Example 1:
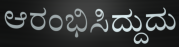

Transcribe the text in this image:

ಆರಂಭಿಸಿದ್ದುದು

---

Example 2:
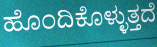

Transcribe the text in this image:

ಹೊಂದಿಕೊಳ್ಳುತ್ತದೆ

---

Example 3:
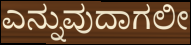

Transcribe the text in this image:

ಎನ್ನುವುದಾಗಲೀ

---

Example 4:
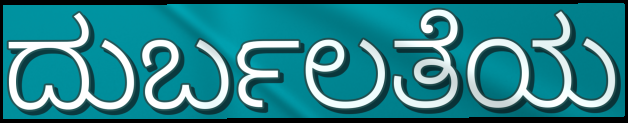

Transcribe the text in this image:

ದುರ್ಬಲತೆಯ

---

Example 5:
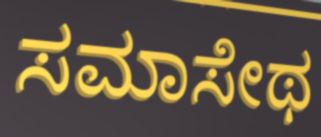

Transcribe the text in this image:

ಸಮಾಸೇಥ